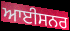
ਆਈਸਨਰ